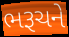
ભરૂચને